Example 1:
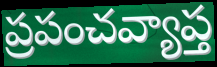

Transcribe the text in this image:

ప్రపంచవ్యాప్త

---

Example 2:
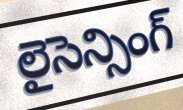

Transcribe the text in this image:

లైసెన్సింగ్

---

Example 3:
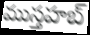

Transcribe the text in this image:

ముస్తహబ్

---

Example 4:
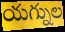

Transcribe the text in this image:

యగ్నుల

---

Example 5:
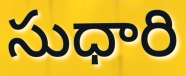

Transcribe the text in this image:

సుధారి